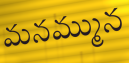
మనమ్మున